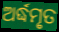
ଅର୍ଦ୍ଧମୃତ